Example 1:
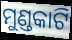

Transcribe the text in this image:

ମୁଣ୍ଡକାଟି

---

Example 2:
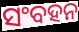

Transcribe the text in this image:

ସଂବହନ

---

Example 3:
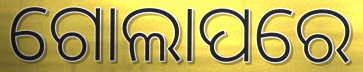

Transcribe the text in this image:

ଗୋଲାପରେ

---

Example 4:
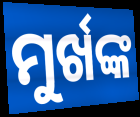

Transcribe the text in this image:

ମୁର୍ଖଙ୍କ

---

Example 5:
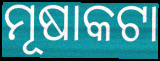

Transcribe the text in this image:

ମୂଷାକଟା